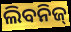
ଲିବନିଜ୍